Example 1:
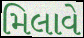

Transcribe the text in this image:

મિલાવે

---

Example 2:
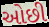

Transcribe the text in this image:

ઓછી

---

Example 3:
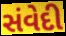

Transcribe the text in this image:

સંવેદી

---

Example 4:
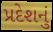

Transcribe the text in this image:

પ્રદેશનું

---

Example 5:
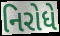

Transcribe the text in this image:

નિરોધે